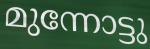
മുന്നോട്ടു